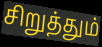
சிறுத்தும்